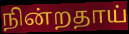
நின்றதாய்